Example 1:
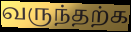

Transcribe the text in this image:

வருந்தற்க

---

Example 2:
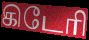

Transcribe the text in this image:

கிடேரி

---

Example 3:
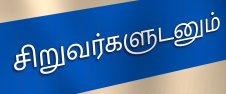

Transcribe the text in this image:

சிறுவர்களுடனும்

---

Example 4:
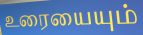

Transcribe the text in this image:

உரையையும்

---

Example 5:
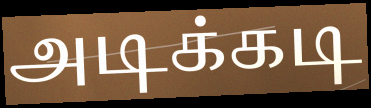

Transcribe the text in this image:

அடிக்கடி